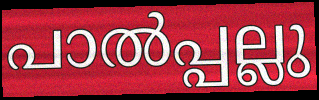
പാൽപ്പല്ലു